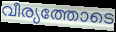
വീര്യത്തോടെ